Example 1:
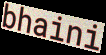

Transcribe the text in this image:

bhaini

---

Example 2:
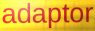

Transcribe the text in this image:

adaptor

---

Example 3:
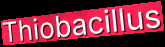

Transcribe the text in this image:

Thiobacillus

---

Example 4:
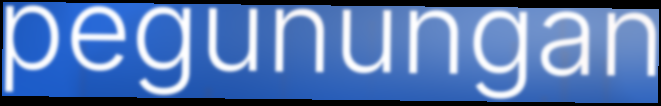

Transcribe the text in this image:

pegunungan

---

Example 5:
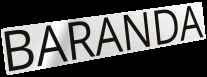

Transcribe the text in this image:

BARANDA